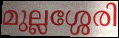
മുല്ലശ്ശേരി